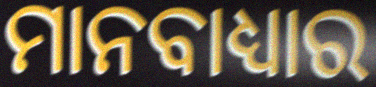
ମାନବାଧ୍ୟାର